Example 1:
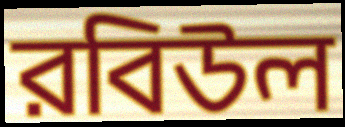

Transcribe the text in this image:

রবিউল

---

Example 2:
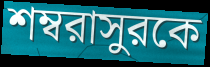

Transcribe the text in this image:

শম্বরাসুরকে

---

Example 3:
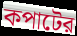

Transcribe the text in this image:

কপাটের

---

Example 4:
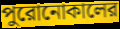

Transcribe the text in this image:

পুরোনোকালের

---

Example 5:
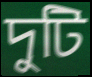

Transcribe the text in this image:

দুটি